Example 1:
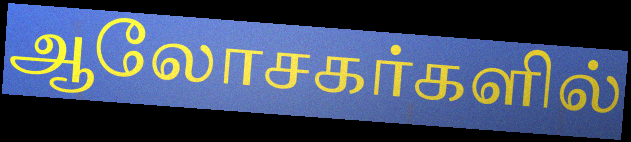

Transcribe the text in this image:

ஆலோசகர்களில்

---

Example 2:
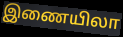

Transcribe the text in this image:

இணையிலா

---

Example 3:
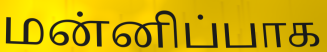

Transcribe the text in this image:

மன்னிப்பாக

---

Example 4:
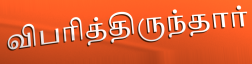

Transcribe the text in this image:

விபரித்திருந்தார்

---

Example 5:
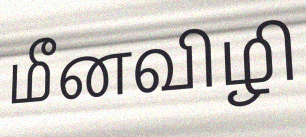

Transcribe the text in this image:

மீனவிழி